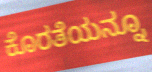
ಕೊರತೆಯನ್ನೂ